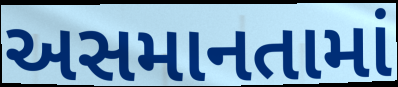
અસમાનતામાં